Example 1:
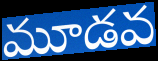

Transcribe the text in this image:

మూడవ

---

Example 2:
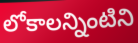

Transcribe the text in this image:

లోకాలన్నింటిని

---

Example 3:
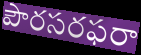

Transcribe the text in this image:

పౌరసరఫరా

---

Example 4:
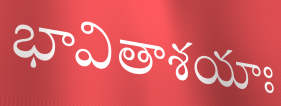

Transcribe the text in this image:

భావితాశయాః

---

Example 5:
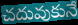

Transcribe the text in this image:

చదువుకునే